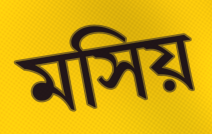
মসিয়